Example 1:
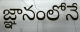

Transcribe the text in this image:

జ్ఞానంలోనే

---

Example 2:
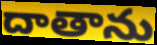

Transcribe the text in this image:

దాతాను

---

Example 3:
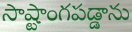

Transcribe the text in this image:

సాష్టాంగపడ్డాను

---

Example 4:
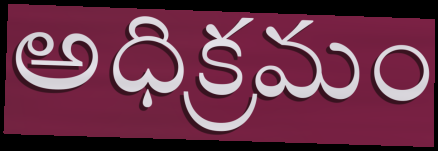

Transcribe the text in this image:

అధిక్రమం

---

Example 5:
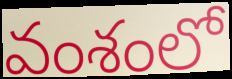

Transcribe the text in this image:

వంశంలో